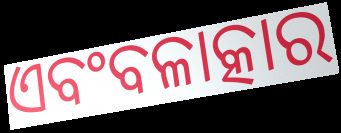
ଏବଂବଳାତ୍କାର